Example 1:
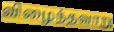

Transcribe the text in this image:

விழைந்தவாறு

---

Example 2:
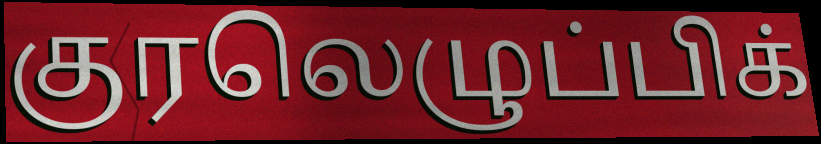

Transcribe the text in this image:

குரலெழுப்பிக்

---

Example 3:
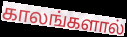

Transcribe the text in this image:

காலங்களால்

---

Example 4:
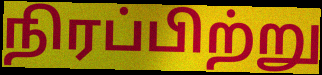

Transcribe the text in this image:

நிரப்பிற்று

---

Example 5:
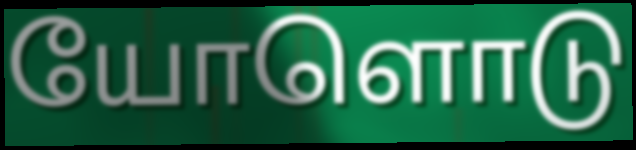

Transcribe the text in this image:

யோளொடு